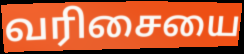
வரிசையை